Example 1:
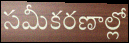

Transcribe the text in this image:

సమీకరణాల్లో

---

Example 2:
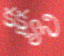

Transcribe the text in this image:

కక్ష్యని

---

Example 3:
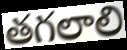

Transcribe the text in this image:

తగలాలి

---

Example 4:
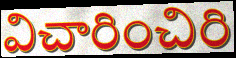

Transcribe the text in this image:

విచారించిరి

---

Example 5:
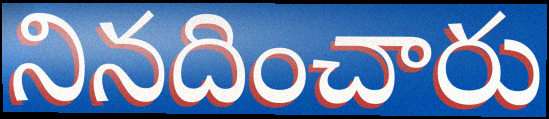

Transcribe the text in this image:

నినదించారు